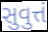
સુવુત્તં